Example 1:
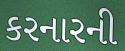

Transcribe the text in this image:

કરનારની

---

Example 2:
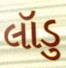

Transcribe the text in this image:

લૉડુ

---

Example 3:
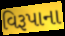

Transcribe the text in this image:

વિરૂપાના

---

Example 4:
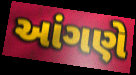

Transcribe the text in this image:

આંગણે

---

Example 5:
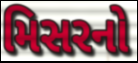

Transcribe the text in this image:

મિસરનો